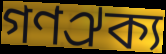
গণঐক্য